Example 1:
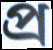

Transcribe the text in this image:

প্ৰ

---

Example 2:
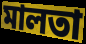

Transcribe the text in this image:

মালতা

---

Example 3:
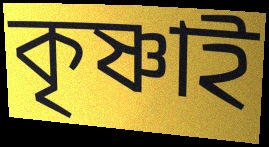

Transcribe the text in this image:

কৃষ্ণাই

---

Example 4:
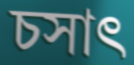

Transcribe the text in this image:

চসাৎ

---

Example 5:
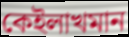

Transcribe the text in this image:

কেইলাখমান